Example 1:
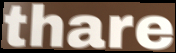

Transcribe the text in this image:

thare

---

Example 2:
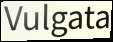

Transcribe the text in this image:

Vulgata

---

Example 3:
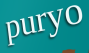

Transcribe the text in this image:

puryo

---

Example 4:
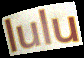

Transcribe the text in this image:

lulu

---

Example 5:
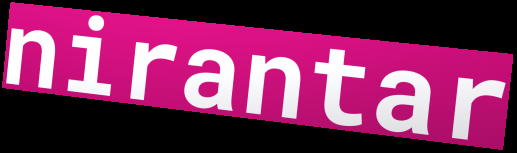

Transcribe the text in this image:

nirantar